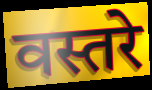
वस्तरे